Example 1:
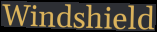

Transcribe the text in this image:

Windshield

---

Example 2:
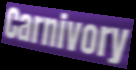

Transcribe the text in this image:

Carnivory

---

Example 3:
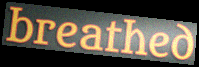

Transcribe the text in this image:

breathed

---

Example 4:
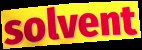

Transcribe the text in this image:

solvent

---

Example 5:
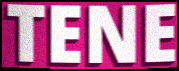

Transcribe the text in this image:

TENE